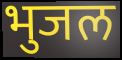
भुजल